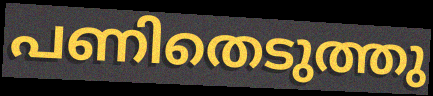
പണിതെടുത്തു